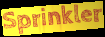
Sprinkler